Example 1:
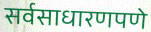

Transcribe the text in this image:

सर्वसाधारणपणे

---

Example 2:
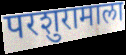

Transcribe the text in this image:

परशुरामाला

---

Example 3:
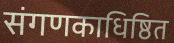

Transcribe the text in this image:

संगणकाधिष्ठित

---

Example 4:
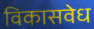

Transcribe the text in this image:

विकासवेध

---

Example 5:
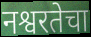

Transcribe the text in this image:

नश्वरतेचा